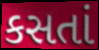
કસતાં